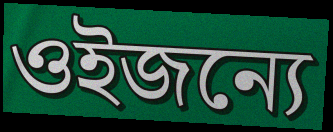
ওইজন্যে